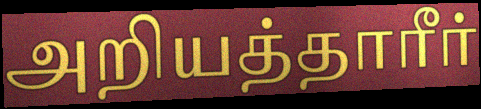
அறியத்தாரீர்